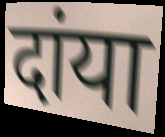
दांया